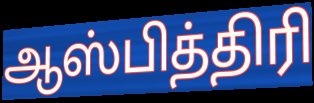
ஆஸ்பித்திரி